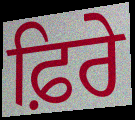
ਫ਼ਿਰੇ